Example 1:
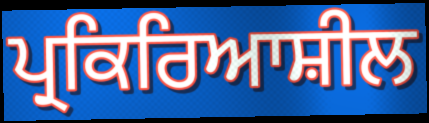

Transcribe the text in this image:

ਪ੍ਰਕਿਰਿਆਸ਼ੀਲ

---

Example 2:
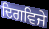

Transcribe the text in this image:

ਦਿਗਵਿਜੇ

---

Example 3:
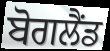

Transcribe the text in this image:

ਬੋਗਲੈਂਡ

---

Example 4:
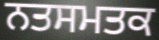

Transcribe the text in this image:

ਨਤਸਮਤਕ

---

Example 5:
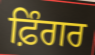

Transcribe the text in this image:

ਫ਼ਿੰਗਰ